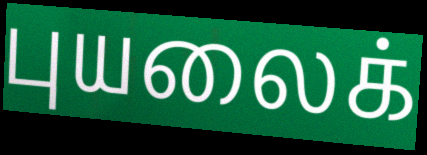
புயலைக்